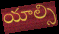
యాల్సి